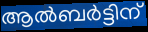
ആൽബർട്ടിന്